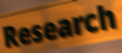
Research